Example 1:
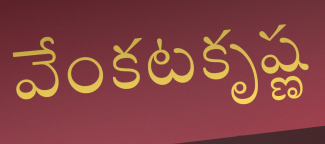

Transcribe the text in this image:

వేంకటకృష్ణ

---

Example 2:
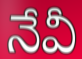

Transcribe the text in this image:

నేవీ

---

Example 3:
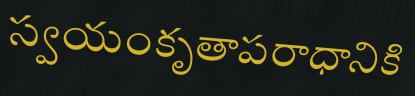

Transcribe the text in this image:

స్వయంకృతాపరాధానికి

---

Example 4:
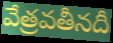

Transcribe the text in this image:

వేత్రవతీనదీ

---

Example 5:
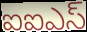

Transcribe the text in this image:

ఐఐఎస్